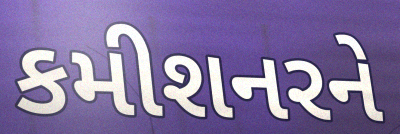
કમીશનરને